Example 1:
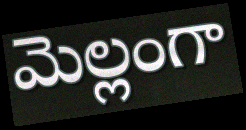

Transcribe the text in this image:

మెల్లంగా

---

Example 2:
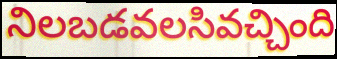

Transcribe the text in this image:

నిలబడవలసివచ్చింది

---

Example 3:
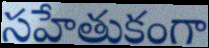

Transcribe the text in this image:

సహేతుకంగా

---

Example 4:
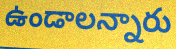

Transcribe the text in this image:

ఉండాలన్నారు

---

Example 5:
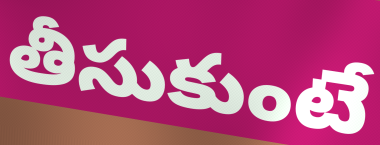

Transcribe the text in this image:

తీసుకుంటే